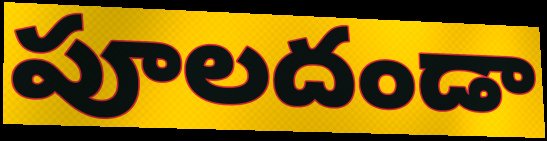
పూలదండా